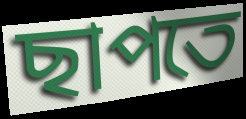
ছাপতে